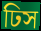
ঢিস